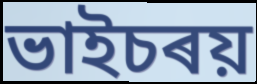
ভাইচৰয়